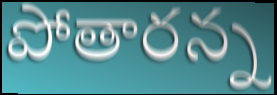
పోతారన్న